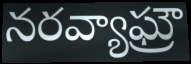
నరవ్యాఘ్రౌ